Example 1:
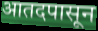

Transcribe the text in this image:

आतदपासून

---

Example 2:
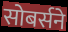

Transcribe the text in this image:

सोबर्सने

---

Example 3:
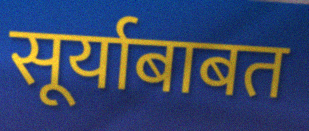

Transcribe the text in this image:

सूर्याबाबत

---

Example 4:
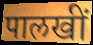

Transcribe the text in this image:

पालखीं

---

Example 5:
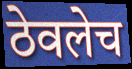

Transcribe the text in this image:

ठेवलेच